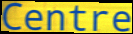
Centre